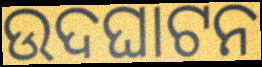
ଉଦଘାଟନ